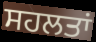
ਸਹਲਤਾਂ